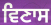
ਵਿਣਾਸ